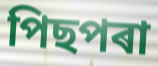
পিছপৰা